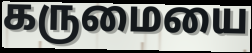
கருமையை